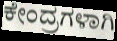
ಕೇಂದ್ರಗಳಾಗಿ